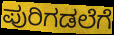
ಪುರಿಗಡಲೆಗೆ